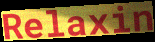
Relaxin